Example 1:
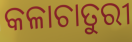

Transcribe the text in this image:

କଳାଚାତୁରୀ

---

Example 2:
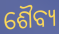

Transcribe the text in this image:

ଶୈବ୍ୟ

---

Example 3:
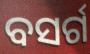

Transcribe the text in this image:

ବସର୍ଗ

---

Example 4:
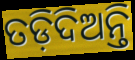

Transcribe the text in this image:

ତଡ଼ିଦିଅନ୍ତି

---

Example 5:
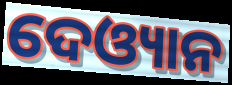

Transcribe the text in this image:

ଦେଓ୍ୟାନ